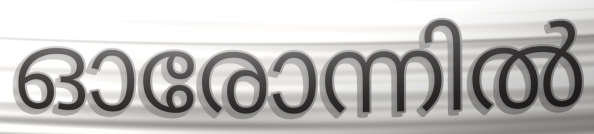
ഓരോന്നിൽ